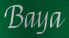
Baya